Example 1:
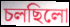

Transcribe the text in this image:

চলছিলো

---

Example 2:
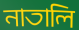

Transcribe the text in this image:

নাতালি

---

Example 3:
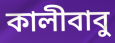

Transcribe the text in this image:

কালীবাবু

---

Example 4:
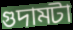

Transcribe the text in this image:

গুদামটা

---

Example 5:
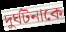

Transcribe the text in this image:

দুর্ঘটনাকে